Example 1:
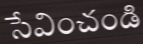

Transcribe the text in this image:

సేవించండి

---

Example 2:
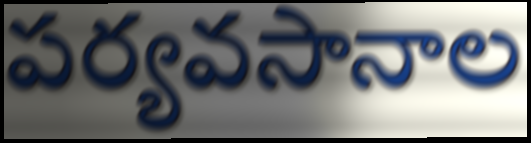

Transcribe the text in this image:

పర్యవసానాల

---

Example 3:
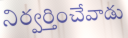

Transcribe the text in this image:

నిర్వర్తించేవాడు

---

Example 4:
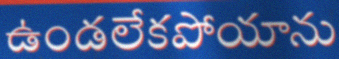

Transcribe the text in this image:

ఉండలేకపోయాను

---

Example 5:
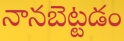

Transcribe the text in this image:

నానబెట్టడం